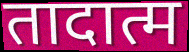
तादात्म